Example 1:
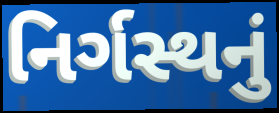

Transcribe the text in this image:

નિર્ગસ્થનું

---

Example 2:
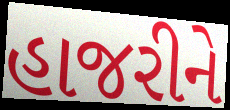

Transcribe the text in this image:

હાજરીને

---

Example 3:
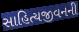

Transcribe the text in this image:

સાહિત્યજીવનની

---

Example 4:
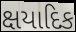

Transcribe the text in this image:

ક્ષયાદિક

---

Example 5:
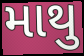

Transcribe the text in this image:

માથુ